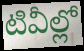
టివీల్లో